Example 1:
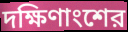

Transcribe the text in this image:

দক্ষিণাংশের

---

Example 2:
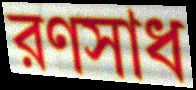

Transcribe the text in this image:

রণসাধ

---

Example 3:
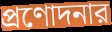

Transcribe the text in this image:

প্রণোদনার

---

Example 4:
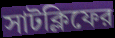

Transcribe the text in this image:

সাটক্লিফের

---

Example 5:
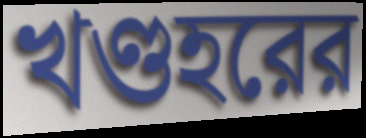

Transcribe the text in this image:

খণ্ডহরের